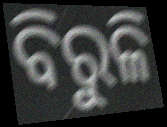
ବିରୁଳି